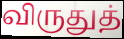
விருதுத்